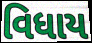
વિધાય